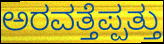
ಅರವತ್ತೆಪ್ಪತ್ತು